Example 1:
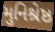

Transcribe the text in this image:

મુનિશ્રેષ્ઠ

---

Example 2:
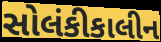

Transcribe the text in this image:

સોલંકીકાલીન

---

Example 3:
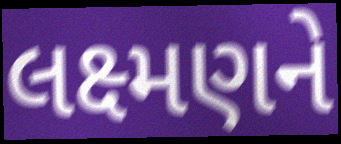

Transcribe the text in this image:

લક્ષ્મણને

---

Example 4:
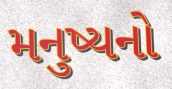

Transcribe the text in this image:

મનુષ્યનો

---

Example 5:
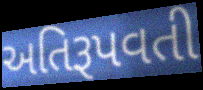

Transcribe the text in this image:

અતિરૂપવતી